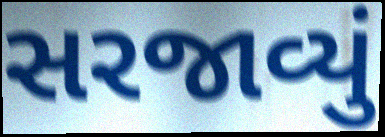
સરજાવ્યું